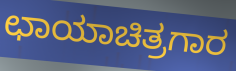
ಛಾಯಾಚಿತ್ರಗಾರ